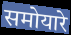
समोयारे